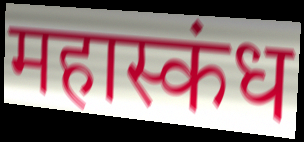
महास्कंध